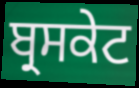
ਬ੍ਰਸਕੇਟ